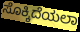
ಸೊಕ್ಕಿದೆಯಲಾ